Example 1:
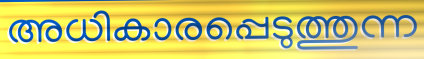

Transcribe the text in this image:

അധികാരപ്പെടുത്തുന്ന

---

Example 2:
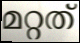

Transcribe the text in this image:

മറ്റത്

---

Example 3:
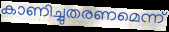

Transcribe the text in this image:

കാണിച്ചുതരണമെന്ന്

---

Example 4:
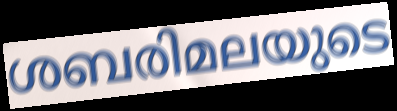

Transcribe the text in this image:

ശബരിമലയുടെ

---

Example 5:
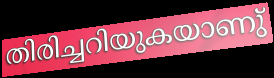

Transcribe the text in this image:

തിരിച്ചറിയുകയാണു്